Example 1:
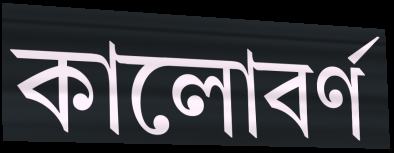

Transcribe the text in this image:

কালোবর্ণ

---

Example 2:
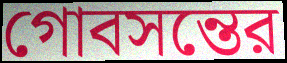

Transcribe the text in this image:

গোবসন্তের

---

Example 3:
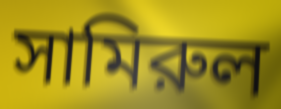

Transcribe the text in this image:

সামিরুল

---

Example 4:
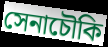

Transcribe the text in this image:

সেনাচৌকি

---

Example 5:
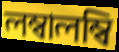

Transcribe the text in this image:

লম্বালম্বি